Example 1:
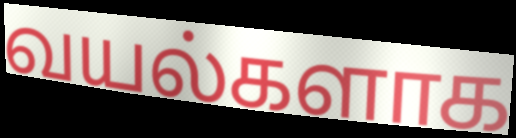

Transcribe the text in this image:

வயல்களாக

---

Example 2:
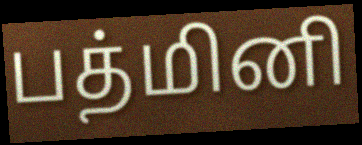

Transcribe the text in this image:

பத்மினி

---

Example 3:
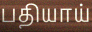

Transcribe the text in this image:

பதியாய்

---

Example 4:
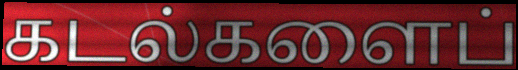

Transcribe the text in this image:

கடல்களைப்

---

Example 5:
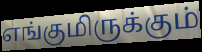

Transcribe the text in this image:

எங்குமிருக்கும்